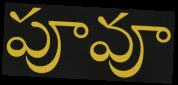
పూవూ